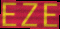
EZE